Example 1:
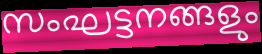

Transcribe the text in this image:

സംഘട്ടനങ്ങളും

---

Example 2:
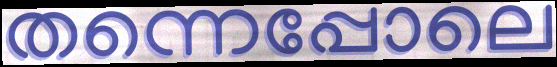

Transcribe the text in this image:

തന്നെപ്പോലെ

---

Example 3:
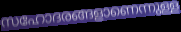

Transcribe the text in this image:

സഹോദരങ്ങളാണെന്നുള്ള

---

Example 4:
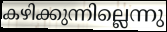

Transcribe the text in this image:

കഴിക്കുന്നില്ലെന്നു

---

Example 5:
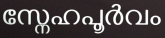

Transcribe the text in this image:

സ്നേഹപൂർവം